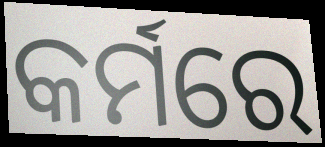
କର୍ମରେ